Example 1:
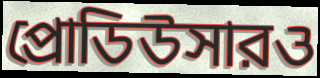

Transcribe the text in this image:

প্রোডিউসারও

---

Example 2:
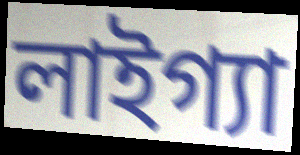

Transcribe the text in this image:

লাইগ্যা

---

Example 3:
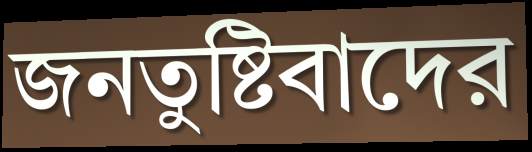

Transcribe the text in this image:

জনতুষ্টিবাদের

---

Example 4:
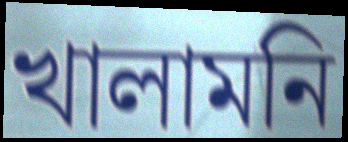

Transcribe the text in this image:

খালামনি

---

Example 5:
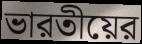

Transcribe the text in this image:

ভারতীয়ের